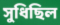
সুধিছিল